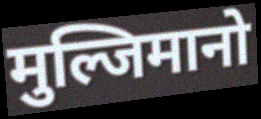
मुल्जिमानो